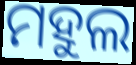
ମହୁଲ